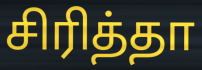
சிரித்தா